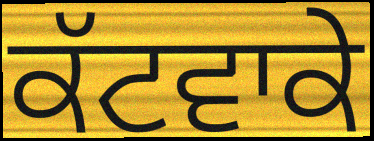
ਕੱਟਵਾਕੇ